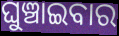
ଘୁଞ୍ଚାଇବାର